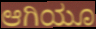
ಆಗಿಯೂ